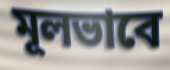
মূলভাবে